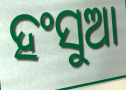
ହଂସୁଆ